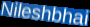
Nileshbhai